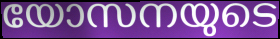
യോസനയുടെ